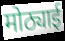
मोठ्याई